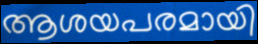
ആശയപരമായി